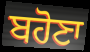
ਬਹੋਣਾ